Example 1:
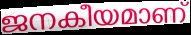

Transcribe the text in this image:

ജനകീയമാണ്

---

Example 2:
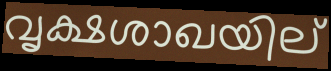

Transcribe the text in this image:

വൃക്ഷശാഖയില്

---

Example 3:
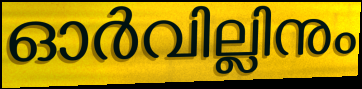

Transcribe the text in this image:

ഓർവില്ലിനും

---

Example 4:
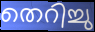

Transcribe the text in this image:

തെറിച്ചു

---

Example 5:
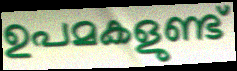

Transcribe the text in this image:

ഉപമകളുണ്ട്